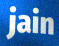
jain